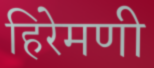
हिरेमणी